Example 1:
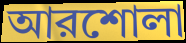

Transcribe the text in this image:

আরশোলা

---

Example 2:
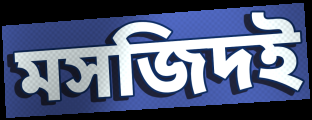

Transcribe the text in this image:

মসজিদই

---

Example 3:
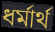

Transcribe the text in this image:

ধর্মার্থ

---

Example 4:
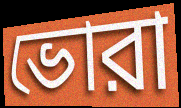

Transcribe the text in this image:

ভোরা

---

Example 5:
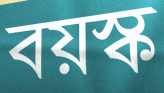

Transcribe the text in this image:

বয়স্ক